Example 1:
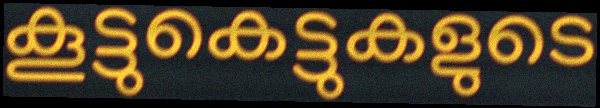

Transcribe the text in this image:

കൂട്ടുകെട്ടുകളുടെ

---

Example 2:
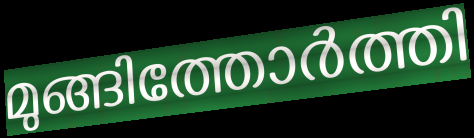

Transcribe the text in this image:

മുങ്ങിത്തോർത്തി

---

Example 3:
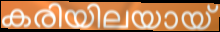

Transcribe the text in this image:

കരിയിലയായ്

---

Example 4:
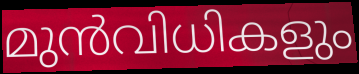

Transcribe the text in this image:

മുൻവിധികളും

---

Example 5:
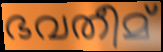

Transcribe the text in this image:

ഭവതീമ്